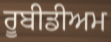
ਰੂਬੀਡੀਅਮ